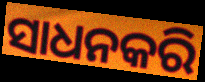
ସାଧନକରି